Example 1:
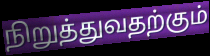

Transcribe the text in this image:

நிறுத்துவதற்கும்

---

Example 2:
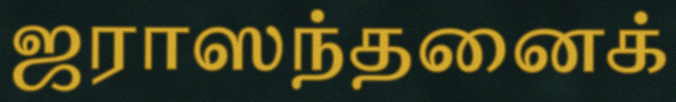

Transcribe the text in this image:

ஜராஸந்தனைக்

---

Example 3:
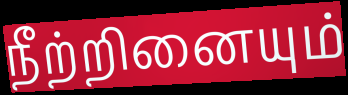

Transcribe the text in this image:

நீற்றினையும்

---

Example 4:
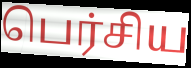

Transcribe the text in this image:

பெர்சிய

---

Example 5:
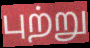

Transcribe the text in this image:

புற்று